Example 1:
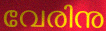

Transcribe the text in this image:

വേരിനു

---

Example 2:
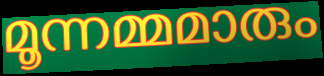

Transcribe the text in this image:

മൂന്നമ്മമാരും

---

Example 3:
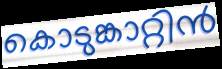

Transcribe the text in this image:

കൊടുങ്കാറ്റിൻ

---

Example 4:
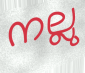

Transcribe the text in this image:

നല്ലു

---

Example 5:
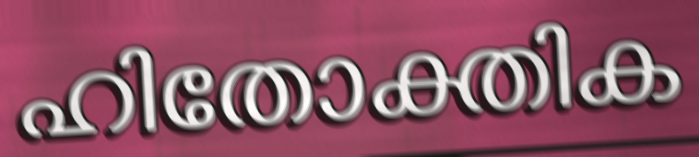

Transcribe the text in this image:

ഹിതോക്തിക